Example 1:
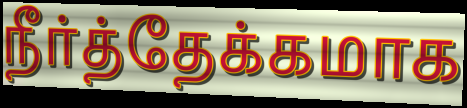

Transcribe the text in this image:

நீர்த்தேக்கமாக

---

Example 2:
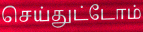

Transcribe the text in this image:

செய்துட்டோம்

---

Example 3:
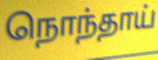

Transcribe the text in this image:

நொந்தாய்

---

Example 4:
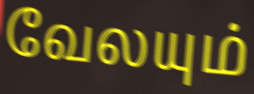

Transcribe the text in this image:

வேலயும்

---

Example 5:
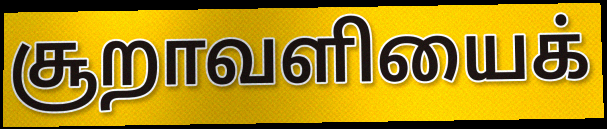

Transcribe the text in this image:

சூறாவளியைக்